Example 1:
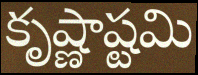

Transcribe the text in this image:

కృష్ణాష్టమి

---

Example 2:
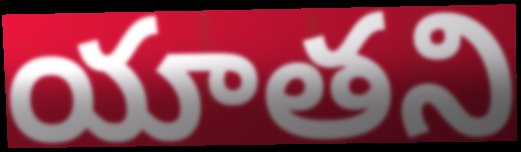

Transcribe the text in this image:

యాతని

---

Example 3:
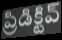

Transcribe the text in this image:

ప్రిడిక్టివ్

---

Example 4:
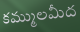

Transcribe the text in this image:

కమ్ములమీద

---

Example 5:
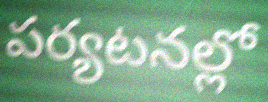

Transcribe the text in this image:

పర్యటనల్లో